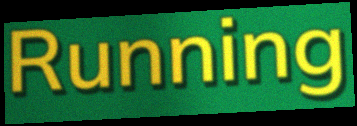
Running